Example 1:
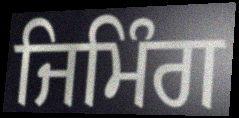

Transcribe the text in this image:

ਜਿਮਿੰਗ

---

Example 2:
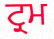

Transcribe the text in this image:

ਟ੍ਰਮ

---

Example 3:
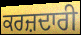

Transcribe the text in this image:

ਕਰਜ਼ਦਾਰੀ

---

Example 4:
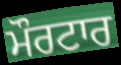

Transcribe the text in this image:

ਮੌਰਟਾਰ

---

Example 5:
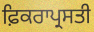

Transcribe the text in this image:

ਫ਼ਿਕਰਾਪ੍ਰਸਤੀ